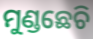
ମୁଣ୍ଡଛେଚି